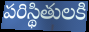
పరిస్థితులకి